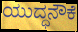
ಯುದ್ಧನೌಕೆ